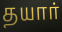
தயார்